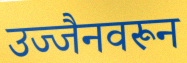
उज्जैनवरून